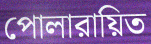
পোলারায়িত